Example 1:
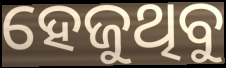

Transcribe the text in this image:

ହେଜୁଥିବୁ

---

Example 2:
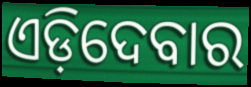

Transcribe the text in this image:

ଏଡ଼ିଦେବାର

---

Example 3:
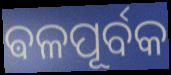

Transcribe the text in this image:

ଵଳପୂର୍ବକ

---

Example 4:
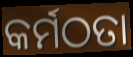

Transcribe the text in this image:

କର୍ମଠତା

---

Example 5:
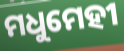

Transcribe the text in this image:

ମଧୁମେହୀ